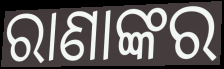
ରାଣାଙ୍କର